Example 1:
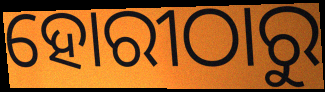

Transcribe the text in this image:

ହୋରୀଠାରୁ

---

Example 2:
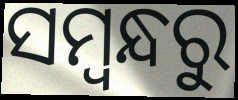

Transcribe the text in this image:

ସମ୍ୱନ୍ଧରୁ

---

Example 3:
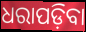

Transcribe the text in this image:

ଧରାପଡ଼ିବା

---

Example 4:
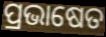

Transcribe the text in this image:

ପ୍ରଭାଷେତ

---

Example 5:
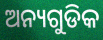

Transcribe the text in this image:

ଅନ୍ୟଗୁଡିକ